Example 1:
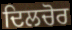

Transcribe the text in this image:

ਦਿਲਚੋਰ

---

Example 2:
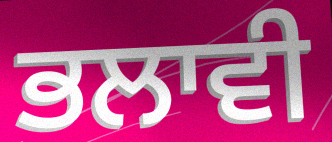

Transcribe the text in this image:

ਭਲਾਵੀ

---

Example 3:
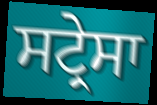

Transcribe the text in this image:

ਸਟ੍ਰੇਸਾ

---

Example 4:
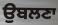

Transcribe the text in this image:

ਉਬਲਣਾ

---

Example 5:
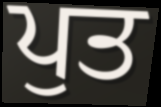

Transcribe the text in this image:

ਪੁਤ